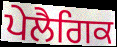
ਪੇਲੈਗਿਕ